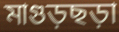
মাগুড়ছড়া